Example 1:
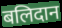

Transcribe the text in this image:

बलिदान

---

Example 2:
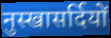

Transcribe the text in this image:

नुस्खासर्दियों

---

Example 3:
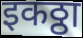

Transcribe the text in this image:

इकठ्ठा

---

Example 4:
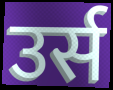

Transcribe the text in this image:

उर्स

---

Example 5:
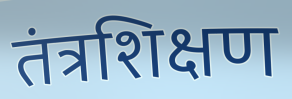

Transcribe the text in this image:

तंत्रशिक्षण